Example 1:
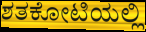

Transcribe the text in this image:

ಶತಕೋಟಿಯಲ್ಲಿ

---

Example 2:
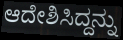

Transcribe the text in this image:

ಆದೇಶಿಸಿದ್ದನ್ನು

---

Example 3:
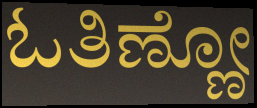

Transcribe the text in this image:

ಓತಿಣ್ಣೋ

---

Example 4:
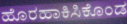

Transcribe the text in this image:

ಹೊರಹಾಕಿಸಿಕೊಂಡ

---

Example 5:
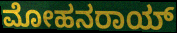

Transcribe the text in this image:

ಮೋಹನರಾಯ್